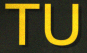
TU